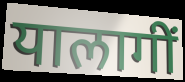
यालागीं